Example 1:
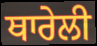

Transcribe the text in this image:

ਥਾਰੇਲੀ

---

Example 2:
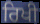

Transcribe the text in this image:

ਰਿਖੀ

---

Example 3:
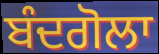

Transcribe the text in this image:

ਬੰਦਗੋਲਾ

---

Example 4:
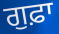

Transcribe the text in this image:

ਗੁਫ਼ਾ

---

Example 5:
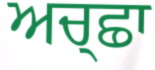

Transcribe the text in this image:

ਅਚ੍ਛਾ